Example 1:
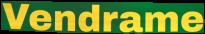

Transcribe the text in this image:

Vendrame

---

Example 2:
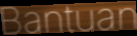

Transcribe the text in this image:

Bantuan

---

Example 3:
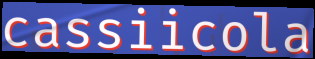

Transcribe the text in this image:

cassiicola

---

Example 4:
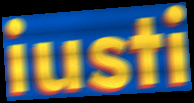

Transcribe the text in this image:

iusti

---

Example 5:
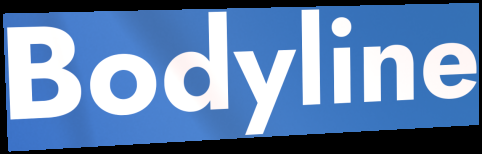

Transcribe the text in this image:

Bodyline